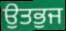
ਉਤਭੁਜ